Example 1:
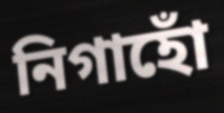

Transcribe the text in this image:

নিগাহোঁ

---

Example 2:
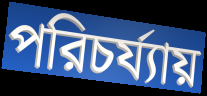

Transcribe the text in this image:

পরিচর্য্যায়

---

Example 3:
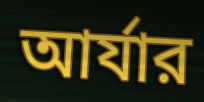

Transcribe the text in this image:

আর্যার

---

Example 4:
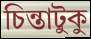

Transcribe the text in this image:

চিন্তাটুকু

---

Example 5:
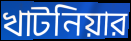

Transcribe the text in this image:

খাটনিয়ার